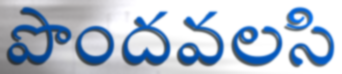
పొందవలసి